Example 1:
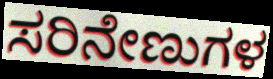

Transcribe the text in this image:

ಸರಿನೇಣುಗಳ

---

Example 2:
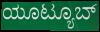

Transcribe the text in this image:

ಯೂಟ್ಯೂಬ್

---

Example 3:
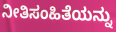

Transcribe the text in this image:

ನೀತಿಸಂಹಿತೆಯನ್ನು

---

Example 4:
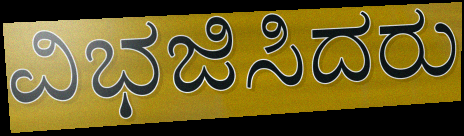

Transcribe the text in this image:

ವಿಭಜಿಸಿದರು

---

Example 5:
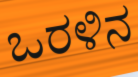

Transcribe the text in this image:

ಒರಳಿನ